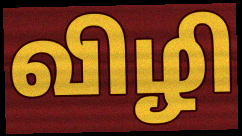
விழி